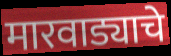
मारवाड्याचे